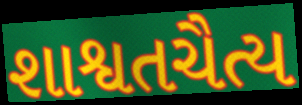
શાશ્વતચૈત્ય